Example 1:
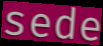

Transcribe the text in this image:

sede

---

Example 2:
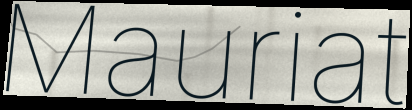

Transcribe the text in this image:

Mauriat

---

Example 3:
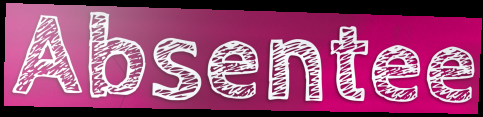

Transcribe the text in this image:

Absentee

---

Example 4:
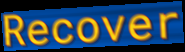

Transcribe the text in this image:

Recover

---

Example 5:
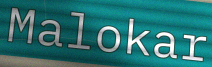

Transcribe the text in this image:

Malokar